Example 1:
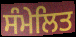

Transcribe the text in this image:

ਸੰਮੇਲਿਤ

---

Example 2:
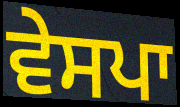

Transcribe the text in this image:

ਵੇਸਪਾ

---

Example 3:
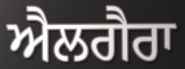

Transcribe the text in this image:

ਐਲਗੈਰਾ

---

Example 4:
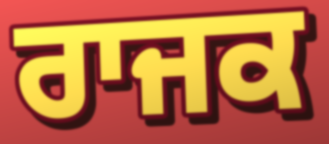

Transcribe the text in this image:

ਰਾਜਕ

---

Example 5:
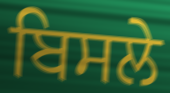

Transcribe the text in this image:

ਬਿਸਲੇ